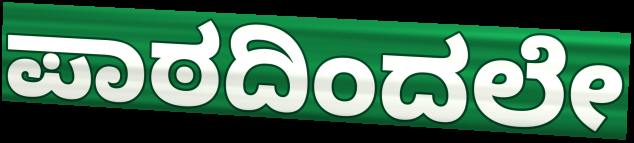
ಪಾಠದಿಂದಲೇ